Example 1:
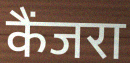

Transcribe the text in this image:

कैंजरा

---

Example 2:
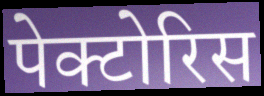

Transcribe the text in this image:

पेक्टोरिस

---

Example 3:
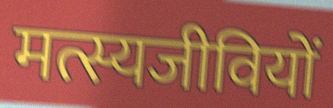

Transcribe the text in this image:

मत्स्यजीवियों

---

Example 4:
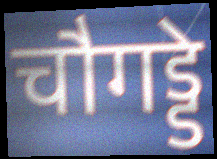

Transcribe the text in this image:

चौगड्डे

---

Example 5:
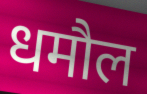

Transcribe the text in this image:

धमौल